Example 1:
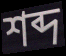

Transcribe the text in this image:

শব্দ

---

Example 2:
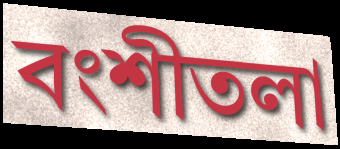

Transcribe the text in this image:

বংশীতলা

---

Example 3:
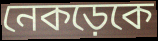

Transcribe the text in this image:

নেকড়েকে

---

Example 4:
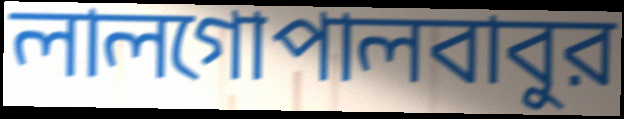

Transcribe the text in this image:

লালগোপালবাবুর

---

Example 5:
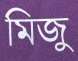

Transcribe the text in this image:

মিজু